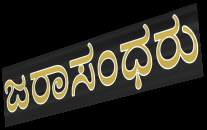
ಜರಾಸಂಧರು